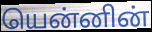
யென்னின்